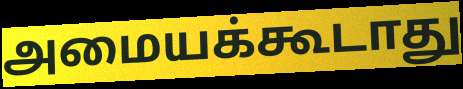
அமையக்கூடாது